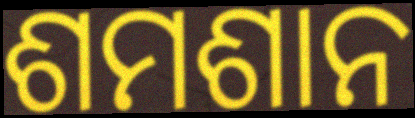
ଶମଶାନ